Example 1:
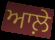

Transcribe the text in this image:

ਆਲ਼ੇ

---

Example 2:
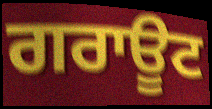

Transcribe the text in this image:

ਗਰਾਊਟ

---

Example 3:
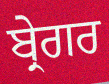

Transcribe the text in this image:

ਬ੍ਰੇਗਰ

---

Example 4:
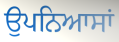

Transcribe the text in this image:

ਉਪਨਿਆਸਾਂ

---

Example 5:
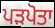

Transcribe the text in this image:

ਪੜਪੋਤਾ